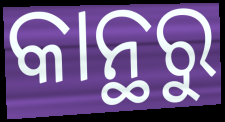
କାନ୍ଥରୁ